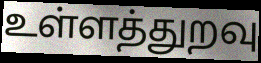
உள்ளத்துறவு